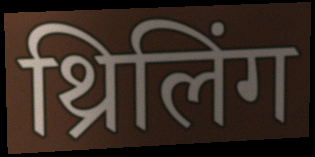
थ्रिलिंग